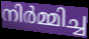
നിർമ്മിച്ച